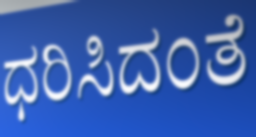
ಧರಿಸಿದಂತೆ